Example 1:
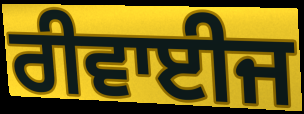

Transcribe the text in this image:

ਰੀਵਾਈਜ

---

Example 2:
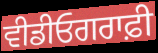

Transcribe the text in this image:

ਵੀਡੀਓਗਰਾਫ਼ੀ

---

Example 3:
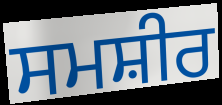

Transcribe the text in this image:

ਸਮਸ਼ੀਰ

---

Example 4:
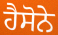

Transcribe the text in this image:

ਹੈਸੋਨੇ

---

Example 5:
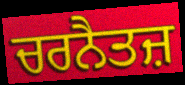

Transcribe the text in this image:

ਚਰਨੈਤਜ਼